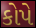
કોપે